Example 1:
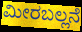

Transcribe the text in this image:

ಮೀರಬಲ್ಲನೆ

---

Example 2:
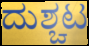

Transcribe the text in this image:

ದುಶ್ಚಟ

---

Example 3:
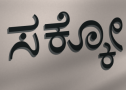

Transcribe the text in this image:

ಸಕ್ಕೋ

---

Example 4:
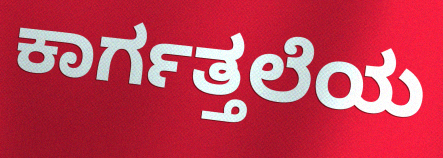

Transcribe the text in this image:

ಕಾರ್ಗತ್ತಲೆಯ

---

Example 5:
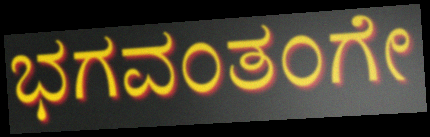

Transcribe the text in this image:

ಭಗವಂತಂಗೇ